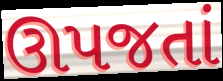
ઊપજતાં